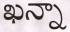
ఖన్నా